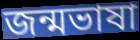
জন্মভাষা